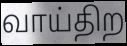
வாய்திற